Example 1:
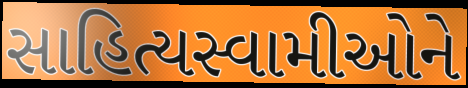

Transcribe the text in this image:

સાહિત્યસ્વામીઓને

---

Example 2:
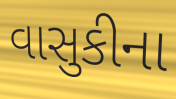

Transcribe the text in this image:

વાસુકીના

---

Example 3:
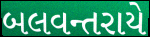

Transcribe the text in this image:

બલવન્તરાયે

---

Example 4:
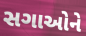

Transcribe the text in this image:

સગાઓને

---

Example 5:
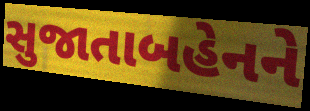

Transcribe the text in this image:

સુજાતાબહેનને